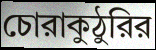
চোরাকুঠুরির